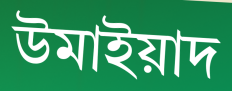
উমাইয়াদ